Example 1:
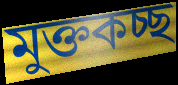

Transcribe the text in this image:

মুক্তকচ্ছ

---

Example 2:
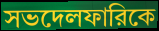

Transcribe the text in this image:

সভদেলফারিকে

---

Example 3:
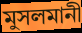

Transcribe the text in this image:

মুসলমানী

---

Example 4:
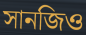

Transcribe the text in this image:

সানজিও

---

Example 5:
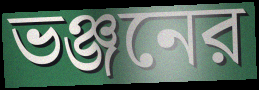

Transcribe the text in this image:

ভঞ্জনের